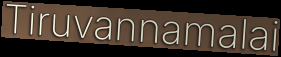
Tiruvannamalai